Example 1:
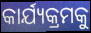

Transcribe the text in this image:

କାର୍ଯ୍ୟକ୍ରମକୁ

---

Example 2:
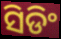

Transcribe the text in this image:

ସିଡିଂ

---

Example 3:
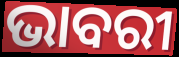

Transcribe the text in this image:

ଭାବରୀ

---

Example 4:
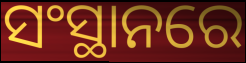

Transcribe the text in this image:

ସଂସ୍ଥାନରେ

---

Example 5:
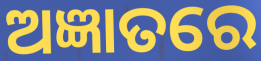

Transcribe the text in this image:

ଅଜ୍ଞାତରେ